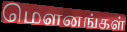
மௌனங்கள்